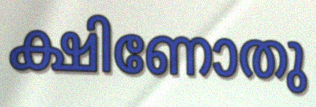
ക്ഷിണോതു